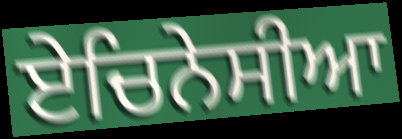
ਏਚਿਨੇਸੀਆ